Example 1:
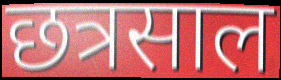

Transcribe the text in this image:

छत्रसाल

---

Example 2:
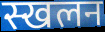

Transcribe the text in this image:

स्‍खलन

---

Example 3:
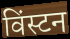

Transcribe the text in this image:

विंस्टन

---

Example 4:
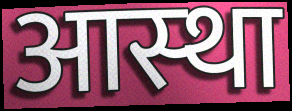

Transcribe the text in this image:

आस्‍था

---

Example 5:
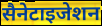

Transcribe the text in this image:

सैनेटाइजेशन